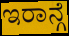
ಇರಾನ್ಗೆ